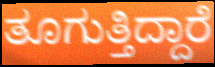
ತೂಗುತ್ತಿದ್ದಾರೆ